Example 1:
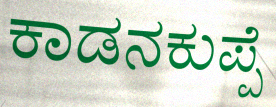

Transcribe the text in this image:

ಕಾಡನಕುಪ್ಪೆ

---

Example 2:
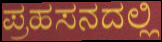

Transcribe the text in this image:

ಪ್ರಹಸನದಲ್ಲಿ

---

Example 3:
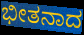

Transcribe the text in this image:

ಭೀತನಾದ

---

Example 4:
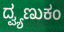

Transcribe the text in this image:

ದ್ವ್ಯಣುಕಂ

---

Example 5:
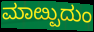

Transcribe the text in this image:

ಮಾೞ್ಪುದುಂ